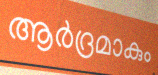
ആർദ്രമാകും